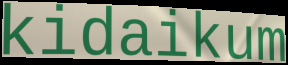
kidaikum